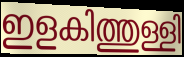
ഇളകിത്തുള്ളി